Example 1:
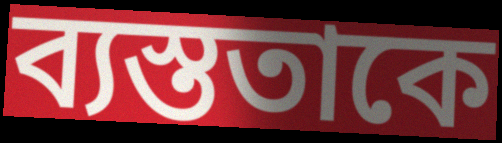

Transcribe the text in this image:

ব্যস্ততাকে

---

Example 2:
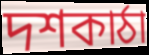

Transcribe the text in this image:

দশকাঠা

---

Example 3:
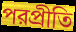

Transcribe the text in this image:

পরপ্রীতি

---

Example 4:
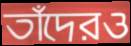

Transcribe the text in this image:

তাঁদেরও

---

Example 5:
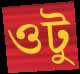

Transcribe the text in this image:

ওটু